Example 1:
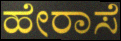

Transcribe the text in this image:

ಹೇರಾಸೆ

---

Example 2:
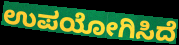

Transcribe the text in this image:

ಉಪಯೋಗಿಸಿದೆ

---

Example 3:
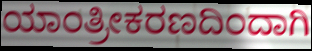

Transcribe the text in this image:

ಯಾಂತ್ರೀಕರಣದಿಂದಾಗಿ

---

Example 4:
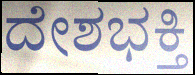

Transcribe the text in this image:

ದೇಶಭಕ್ತಿ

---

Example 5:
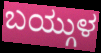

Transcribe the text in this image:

ಬಯ್ಗುಳ